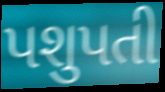
પશુપતી